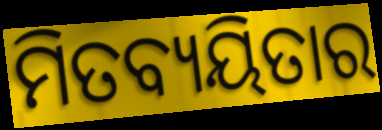
ମିତବ୍ୟୟିତାର